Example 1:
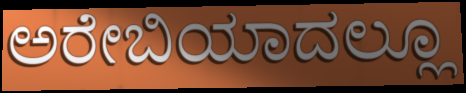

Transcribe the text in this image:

ಅರೇಬಿಯಾದಲ್ಲೂ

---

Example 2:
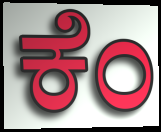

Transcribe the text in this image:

ಕೆಂ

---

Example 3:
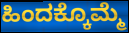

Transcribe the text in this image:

ಹಿಂದಕ್ಕೊಮ್ಮೆ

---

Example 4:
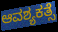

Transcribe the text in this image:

ಆವಶ್ಯಕತ್ಸೆ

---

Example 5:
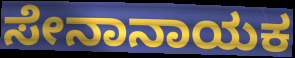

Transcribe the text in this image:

ಸೇನಾನಾಯಕ